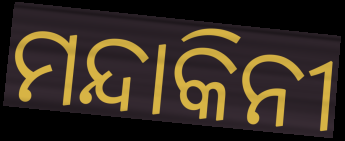
ମନ୍ଦାକିନୀ